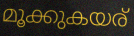
മൂക്കുകയര്